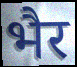
भैर